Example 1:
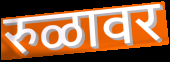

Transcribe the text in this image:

रुळावर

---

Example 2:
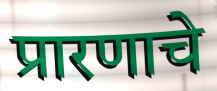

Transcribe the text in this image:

प्रारणाचे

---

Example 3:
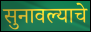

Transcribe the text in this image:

सुनावल्याचे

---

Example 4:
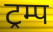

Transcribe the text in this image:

ट्रम्‍प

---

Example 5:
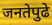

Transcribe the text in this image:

जनतेपुढे